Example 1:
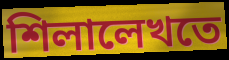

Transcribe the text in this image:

শিলালেখতে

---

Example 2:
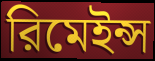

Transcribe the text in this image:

রিমেইন্স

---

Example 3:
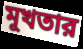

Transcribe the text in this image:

মূখতার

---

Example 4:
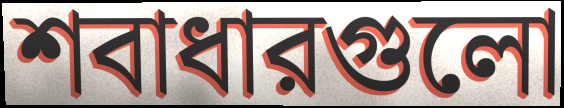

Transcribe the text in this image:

শবাধারগুলো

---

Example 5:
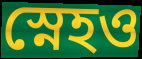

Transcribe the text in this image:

স্নেহও